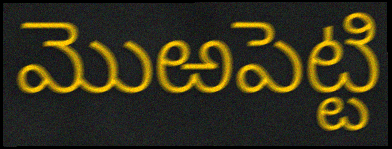
మొఱపెట్టి